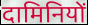
दामिनियों